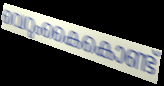
വെറുംകൈകൊണ്ട്